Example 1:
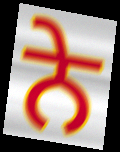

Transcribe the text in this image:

ਨੇ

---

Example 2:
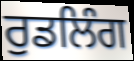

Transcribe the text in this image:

ਰੁਡਲਿੰਗ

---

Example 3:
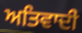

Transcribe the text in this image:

ਅਤਿਵਾਦੀ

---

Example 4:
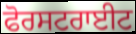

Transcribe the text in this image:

ਫੋਰਸਟਰਾਈਟ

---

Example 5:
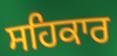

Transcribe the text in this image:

ਸਹਿਕਾਰ